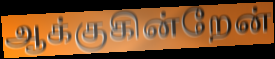
ஆக்குகின்றேன்